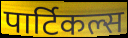
पार्टिकल्‍स